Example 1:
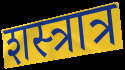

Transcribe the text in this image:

शस्त्रात्र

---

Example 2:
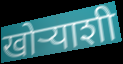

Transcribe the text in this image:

खोऱ्याशी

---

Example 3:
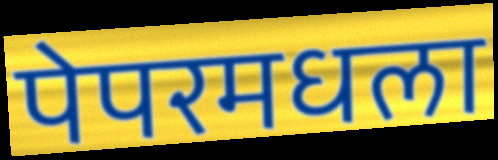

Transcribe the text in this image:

पेपरमधला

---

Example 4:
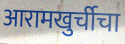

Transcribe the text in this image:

आरामखुर्चीचा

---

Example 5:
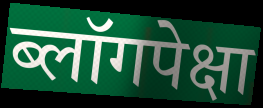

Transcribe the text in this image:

ब्लॉगपेक्षा